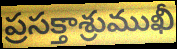
ప్రసక్తాశ్రుముఖీ